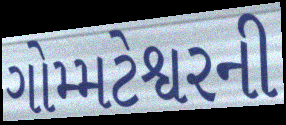
ગોમ્મટેશ્વરની